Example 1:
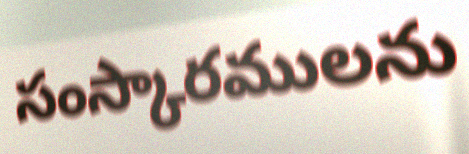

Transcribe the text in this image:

సంస్కారములను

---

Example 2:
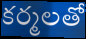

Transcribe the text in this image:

కర్మలతో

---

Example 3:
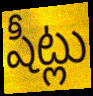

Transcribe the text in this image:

షీట్లు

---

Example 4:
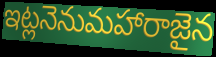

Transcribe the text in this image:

ఇట్లనెనుమహారాజైన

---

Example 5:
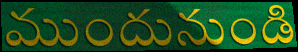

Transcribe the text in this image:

ముందునుండి